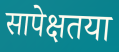
सापेक्षतया